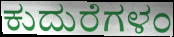
ಕುದುರೆಗಳಂ